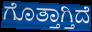
ಗೊತ್ತಾಗ್ತಿದೆ